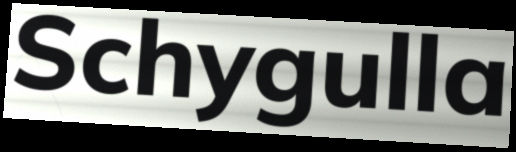
Schygulla